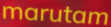
marutam